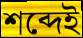
শব্দেই